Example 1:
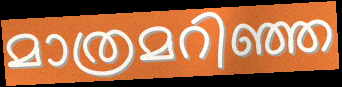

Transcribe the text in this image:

മാത്രമറിഞ്ഞ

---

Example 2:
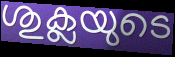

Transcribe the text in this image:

ശുക്ലയുടെ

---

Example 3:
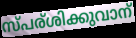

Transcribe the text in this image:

സ്പര്ശിക്കുവാന്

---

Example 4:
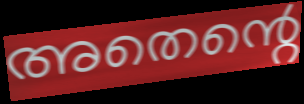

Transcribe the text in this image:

അതെന്റെ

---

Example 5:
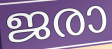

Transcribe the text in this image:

ജരാ